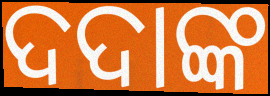
ଦଦାଙ୍କ